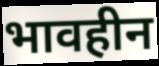
भावहीन